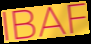
IBAF